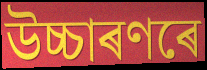
উচ্চাৰণৰে